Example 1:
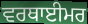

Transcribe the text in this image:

ਵਰਥਾਈਮਰ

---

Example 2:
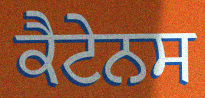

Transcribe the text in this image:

ਕੈਟੇਨਸ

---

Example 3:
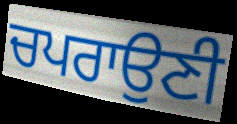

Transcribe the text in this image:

ਚਪਰਾਉਣੀ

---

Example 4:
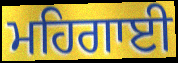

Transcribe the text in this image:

ਮਹਿਗਾਈ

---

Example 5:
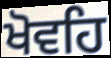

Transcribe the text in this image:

ਖੋਵਹਿ